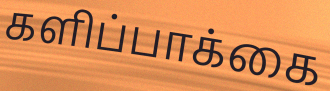
களிப்பாக்கை